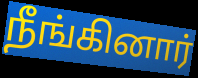
நீங்கினார்